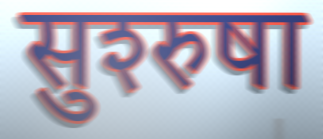
सुश्रुषा